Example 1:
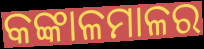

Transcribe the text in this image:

କଙ୍କାଳମାଳର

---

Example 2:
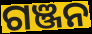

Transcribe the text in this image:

ଗଞ୍ଜନ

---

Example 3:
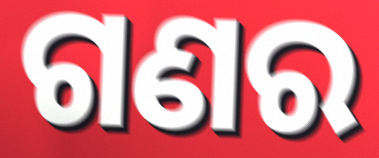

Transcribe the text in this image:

ଗଣର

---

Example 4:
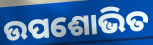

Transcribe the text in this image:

ଉପଶୋଭିତ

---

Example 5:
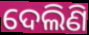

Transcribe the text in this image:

ଦେଲିଣି